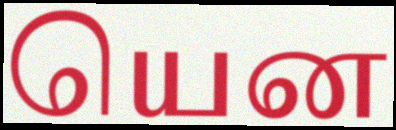
யென